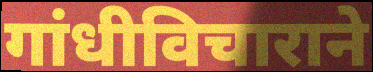
गांधीविचाराने